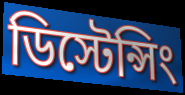
ডিস্টেন্সিং